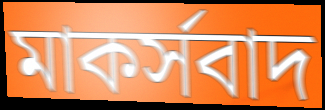
মাকর্সবাদ